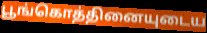
பூங்கொத்தினையுடைய